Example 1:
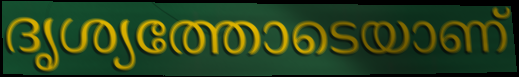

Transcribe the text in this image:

ദൃശ്യത്തോടെയാണ്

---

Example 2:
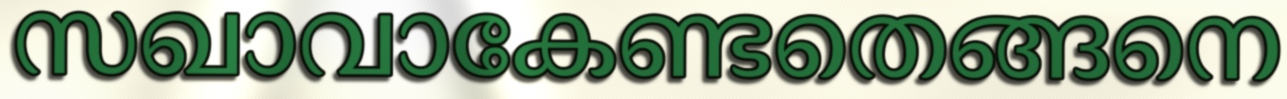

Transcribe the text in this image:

സഖാവാകേണ്ടതെങ്ങനെ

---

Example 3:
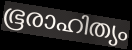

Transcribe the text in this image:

ഭൂരാഹിത്യം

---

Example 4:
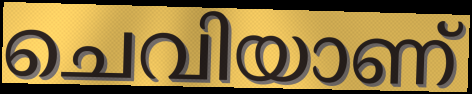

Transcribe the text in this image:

ചെവിയാണ്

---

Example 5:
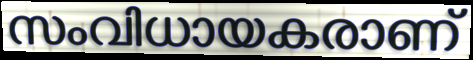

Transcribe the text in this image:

സംവിധായകരാണ്